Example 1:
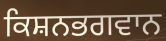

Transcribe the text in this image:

ਕਿਸ਼ਨਭਗਵਾਨ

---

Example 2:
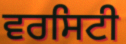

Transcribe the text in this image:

ਵਰਸਿਟੀ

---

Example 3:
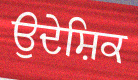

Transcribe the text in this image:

ਉਦੇਸ਼ਿਕ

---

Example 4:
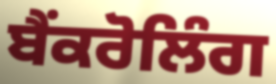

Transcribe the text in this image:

ਬੈਂਕਰੋਲਿੰਗ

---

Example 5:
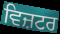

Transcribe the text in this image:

ਵਿਜ਼ਟਰ